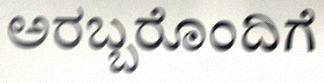
ಅರಬ್ಬರೊಂದಿಗೆ